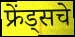
फ्रेंड्सचे